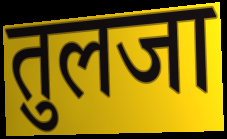
तुलजा